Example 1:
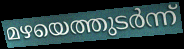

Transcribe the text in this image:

മഴയെത്തുടർന്ന്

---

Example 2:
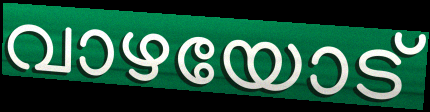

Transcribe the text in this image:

വാഴയോട്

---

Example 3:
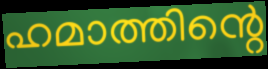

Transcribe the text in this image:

ഹമാത്തിന്റെ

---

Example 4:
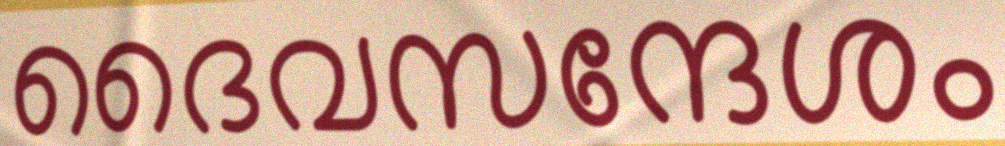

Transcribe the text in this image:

ദൈവസന്ദേശം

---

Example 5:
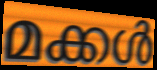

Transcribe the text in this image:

മക്കൾ